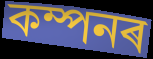
কম্পনৰ